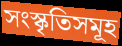
সংস্কৃতিসমূহ